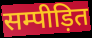
सम्पीड़ित